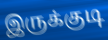
இருக்குடி